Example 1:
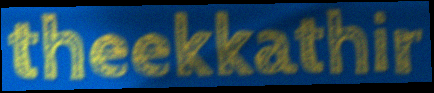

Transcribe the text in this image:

theekkathir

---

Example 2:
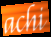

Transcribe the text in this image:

achi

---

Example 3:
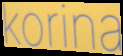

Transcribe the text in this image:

korina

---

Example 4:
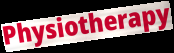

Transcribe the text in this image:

Physiotherapy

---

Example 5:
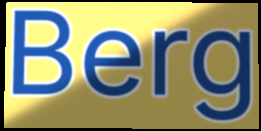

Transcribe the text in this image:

Berg